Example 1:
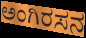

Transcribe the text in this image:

ಅಂಗಿರಸನ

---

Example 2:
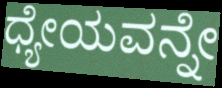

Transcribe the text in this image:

ಧ್ಯೇಯವನ್ನೇ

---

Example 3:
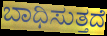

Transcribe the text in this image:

ಬಾಧಿಸುತ್ತದೆ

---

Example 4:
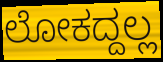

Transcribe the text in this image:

ಲೋಕದ್ದಲ್ಲ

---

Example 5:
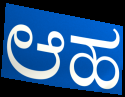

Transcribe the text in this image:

ಆಹ